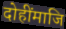
दोहींमाजि